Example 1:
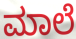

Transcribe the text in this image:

ಮಾಲೆ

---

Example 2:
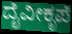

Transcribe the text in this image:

ದೈವೀಕೃಪೆ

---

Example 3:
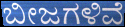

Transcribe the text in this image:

ಬೀಜಗಳಿವೆ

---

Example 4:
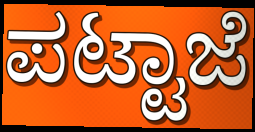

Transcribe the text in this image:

ಪಟ್ಟಾಜೆ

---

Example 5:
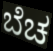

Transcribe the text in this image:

ಬೆಚ